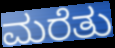
ಮರೆತು